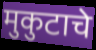
मुकुटाचे